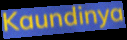
Kaundinya